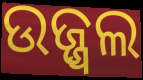
ଉଜ୍ଜ୍ୱଲ